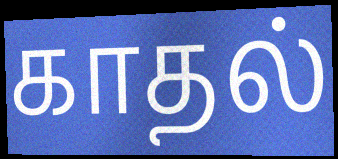
காதல்